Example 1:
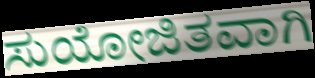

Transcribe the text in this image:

ಸುಯೋಜಿತವಾಗಿ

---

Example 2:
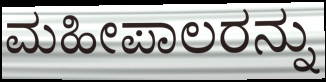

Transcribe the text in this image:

ಮಹೀಪಾಲರನ್ನು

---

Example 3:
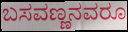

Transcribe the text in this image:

ಬಸವಣ್ಣನವರೂ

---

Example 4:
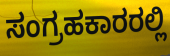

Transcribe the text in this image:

ಸಂಗ್ರಹಕಾರರಲ್ಲಿ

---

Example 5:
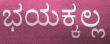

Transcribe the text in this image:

ಭಯಕ್ಕಲ್ಲ